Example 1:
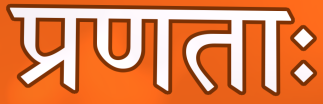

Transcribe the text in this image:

प्रणताः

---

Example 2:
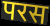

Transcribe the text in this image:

परस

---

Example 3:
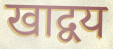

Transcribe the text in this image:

खाद्वय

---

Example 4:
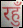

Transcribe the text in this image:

रहुँ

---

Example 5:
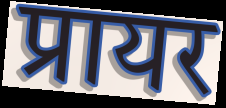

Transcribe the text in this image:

प्रायर